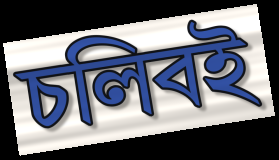
চলিবই